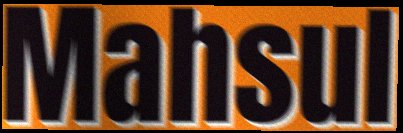
Mahsul